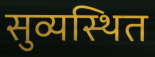
सुव्यस्थित